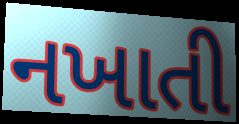
નખાતી